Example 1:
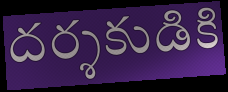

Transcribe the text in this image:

దర్శకుడికి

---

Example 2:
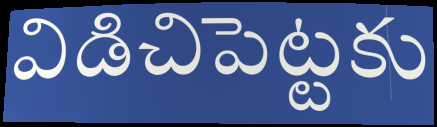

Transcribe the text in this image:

విడిచిపెట్టకు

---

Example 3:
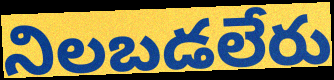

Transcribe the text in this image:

నిలబడలేరు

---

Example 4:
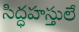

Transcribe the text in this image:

సిద్ధహస్తులే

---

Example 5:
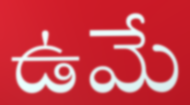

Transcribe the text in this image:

ఉమే